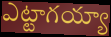
ఎట్టాగయ్యా